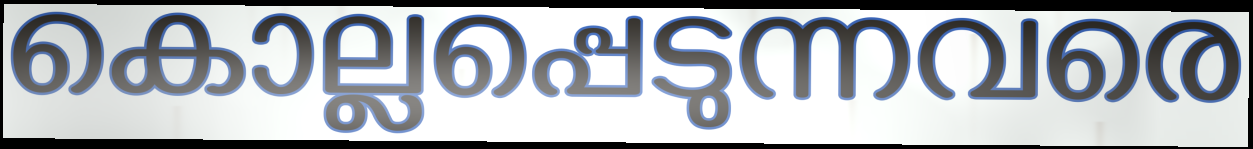
കൊല്ലപ്പെടുന്നവരെ